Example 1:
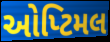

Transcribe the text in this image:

ઓપ્ટિમલ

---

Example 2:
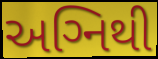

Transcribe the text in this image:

અગ્‍નિથી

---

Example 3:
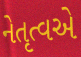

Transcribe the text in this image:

નેતૃત્વએ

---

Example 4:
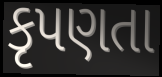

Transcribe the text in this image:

કૃપણતા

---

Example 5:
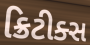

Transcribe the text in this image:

ક્રિટીક્સ